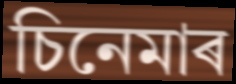
চিনেমাৰ